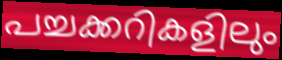
പച്ചക്കറികളിലും